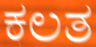
ಕಲತ